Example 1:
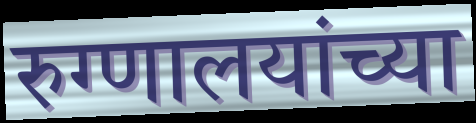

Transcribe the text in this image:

रुग्णालयांच्या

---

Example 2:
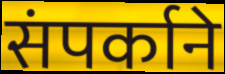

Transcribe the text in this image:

संपर्काने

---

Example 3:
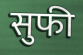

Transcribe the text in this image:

सुफी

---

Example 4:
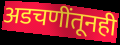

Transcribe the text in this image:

अडचणींतूनही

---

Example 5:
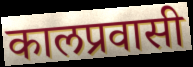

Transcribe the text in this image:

कालप्रवासी